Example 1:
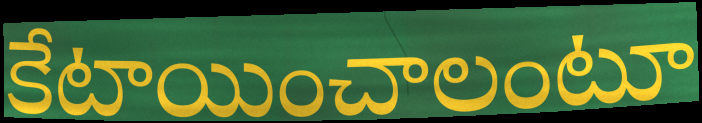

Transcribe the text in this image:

కేటాయించాలంటూ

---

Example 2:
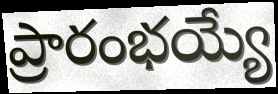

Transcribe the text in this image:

ప్రారంభయ్యే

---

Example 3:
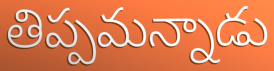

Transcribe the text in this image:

తిప్పమన్నాడు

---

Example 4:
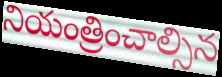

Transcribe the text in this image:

నియంత్రించాల్సిన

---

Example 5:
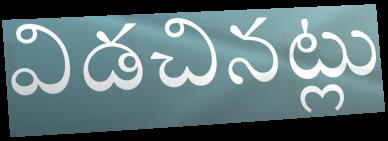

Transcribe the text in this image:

విడచినట్లు